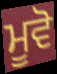
ਮੂਵੋ